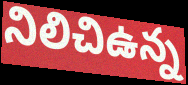
నిలిచిఉన్న